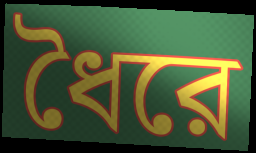
ধৈরে